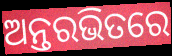
ଅନ୍ତରଭିତରେ